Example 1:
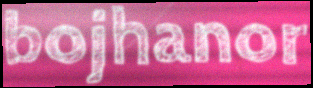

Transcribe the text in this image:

bojhanor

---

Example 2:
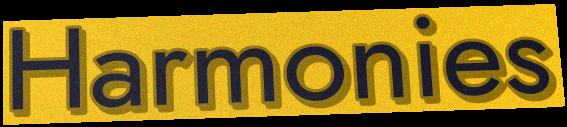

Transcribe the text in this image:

Harmonies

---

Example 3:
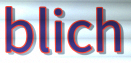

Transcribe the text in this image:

blich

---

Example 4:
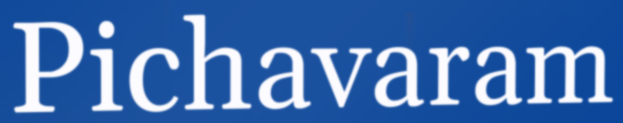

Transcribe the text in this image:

Pichavaram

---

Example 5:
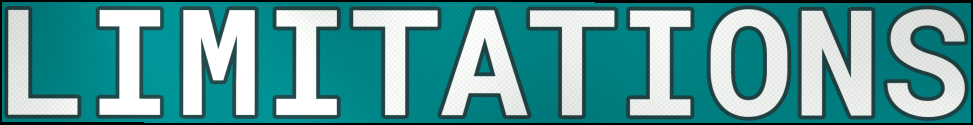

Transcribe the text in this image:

LIMITATIONS